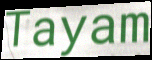
Tayam